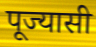
पूज्यासी